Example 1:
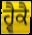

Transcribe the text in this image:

ਹ੍ਵੈਕੈ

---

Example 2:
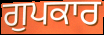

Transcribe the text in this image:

ਗੁਪਕਾਰ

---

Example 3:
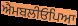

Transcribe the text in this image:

ਐਮਬਲੀਓਪਿਆ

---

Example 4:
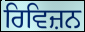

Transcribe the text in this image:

ਰਿਵਿਜ਼ਨ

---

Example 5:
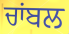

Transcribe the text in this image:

ਚਾਂਬਲ